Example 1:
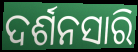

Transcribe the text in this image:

ଦର୍ଶନସାରି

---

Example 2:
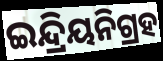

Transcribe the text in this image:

ଇନ୍ଦ୍ରିୟନିଗ୍ରହ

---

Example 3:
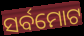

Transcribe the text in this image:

ସର୍ବମୋଟ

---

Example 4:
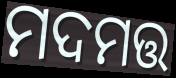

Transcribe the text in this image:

ମଦମତ୍ତ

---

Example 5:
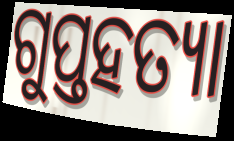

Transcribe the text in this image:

ଗୁପ୍ତହତ୍ୟା